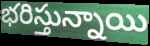
భరిస్తున్నాయి